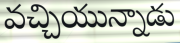
వచ్చియున్నాడు